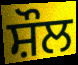
ਸ਼ੌਲ